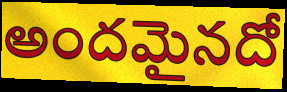
అందమైనదో